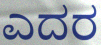
ಎದರ